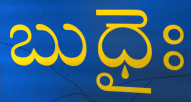
బుధైః